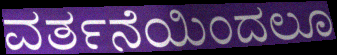
ವರ್ತನೆಯಿಂದಲೂ